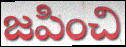
జపించి